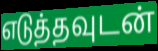
எடுத்தவுடன்